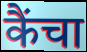
कैंचा